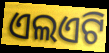
ଏଲଏଟି